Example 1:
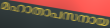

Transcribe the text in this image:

മഹാതാപസനായ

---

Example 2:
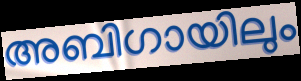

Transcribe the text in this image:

അബിഗായിലും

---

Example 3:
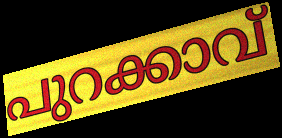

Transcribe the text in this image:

പുറക്കാവ്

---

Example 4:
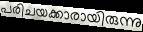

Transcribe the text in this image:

പരിചയക്കാരായിരുന്നു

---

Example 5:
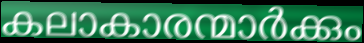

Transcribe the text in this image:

കലാകാരന്മാർക്കും